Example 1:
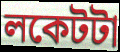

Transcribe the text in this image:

লকেটটা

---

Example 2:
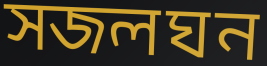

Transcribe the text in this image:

সজলঘন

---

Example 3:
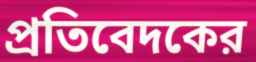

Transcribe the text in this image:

প্রতিবেদকের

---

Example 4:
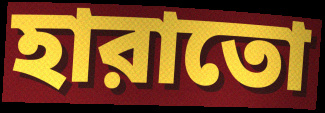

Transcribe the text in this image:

হারাতো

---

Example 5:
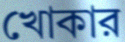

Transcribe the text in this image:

খোকার